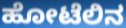
ಹೋಟೆಲಿನ